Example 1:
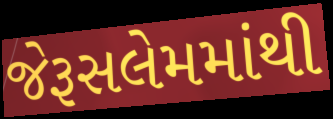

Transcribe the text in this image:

જેરૂસલેમમાંથી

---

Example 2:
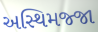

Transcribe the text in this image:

અસ્થિમજ્જા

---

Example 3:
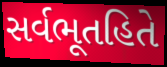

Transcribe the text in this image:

સર્વભૂતહિતે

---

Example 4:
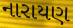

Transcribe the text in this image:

નારાયણ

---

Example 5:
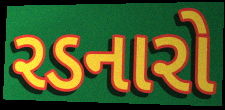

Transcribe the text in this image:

રડનારો